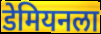
डेमियनला